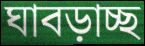
ঘাবড়াচ্ছ